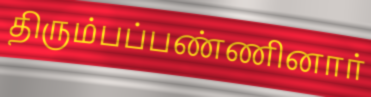
திரும்பப்பண்ணினார்